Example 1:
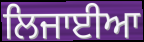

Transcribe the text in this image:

ਲਿਜਾਈਆ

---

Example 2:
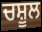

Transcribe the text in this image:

ਚਸ਼ੂਲ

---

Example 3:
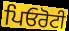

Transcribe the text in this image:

ਪਿਓਰੋਟੀ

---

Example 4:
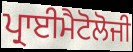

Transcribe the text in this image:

ਪ੍ਰਾਈਮੈਟੋਲੋਜੀ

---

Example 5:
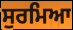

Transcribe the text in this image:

ਸੁਰਮਿਆ